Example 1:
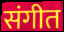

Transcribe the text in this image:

संगीत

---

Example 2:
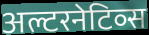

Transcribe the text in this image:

अल्टरनेटिव्स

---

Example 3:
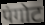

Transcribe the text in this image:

पंगोट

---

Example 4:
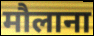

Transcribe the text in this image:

मौलाना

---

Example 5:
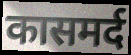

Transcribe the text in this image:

कासमर्द